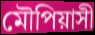
মৌপিয়াসী